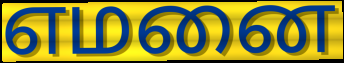
எமனை